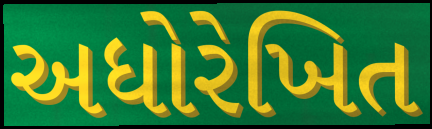
અધોરેખિત